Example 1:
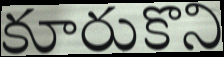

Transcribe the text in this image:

కూరుకొని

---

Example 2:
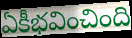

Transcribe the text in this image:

ఏకీభవించింది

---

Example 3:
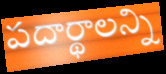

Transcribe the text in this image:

పదార్థాలన్ని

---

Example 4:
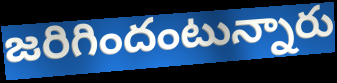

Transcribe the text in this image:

జరిగిందంటున్నారు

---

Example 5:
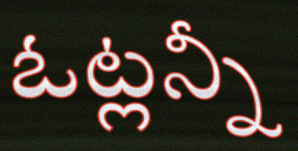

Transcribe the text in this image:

ఓట్లన్నీ